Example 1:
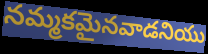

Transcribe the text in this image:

నమ్మకమైనవాడనియు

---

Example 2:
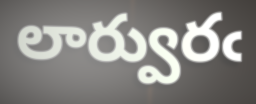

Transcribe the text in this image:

లార్వురఁ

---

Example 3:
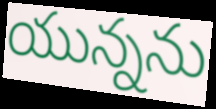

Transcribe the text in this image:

యున్నను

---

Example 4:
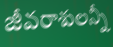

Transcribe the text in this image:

జీవరాశులన్నీ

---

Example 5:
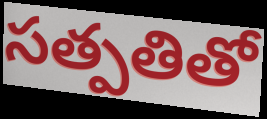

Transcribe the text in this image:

సత్పతితో